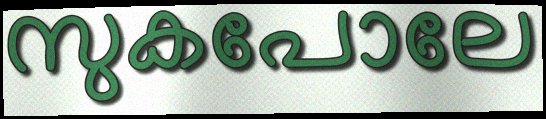
സുകപോലേ